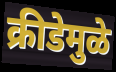
क्रीडेमुळे